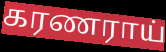
கரணராய்